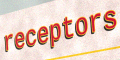
receptors